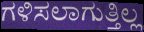
ಗಳಿಸಲಾಗುತ್ತಿಲ್ಲ